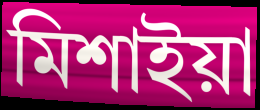
মিশাইয়া